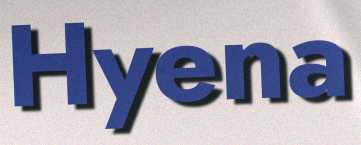
Hyena